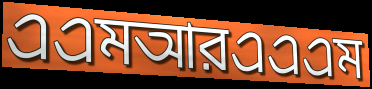
এএমআরএএএম